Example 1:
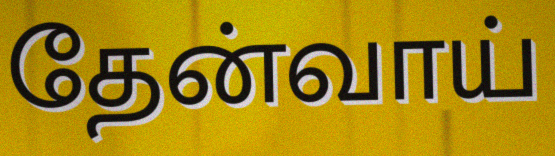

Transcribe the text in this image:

தேன்வாய்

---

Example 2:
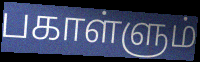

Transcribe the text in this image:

பகாள்ளும்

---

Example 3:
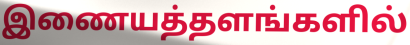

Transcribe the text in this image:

இணையத்தளங்களில்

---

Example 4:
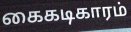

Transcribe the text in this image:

கைகடிகாரம்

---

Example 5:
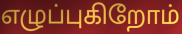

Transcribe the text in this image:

எழுப்புகிறோம்